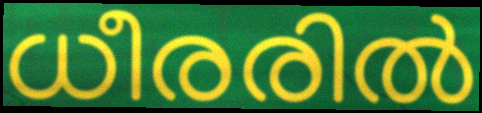
ധീരരിൽ